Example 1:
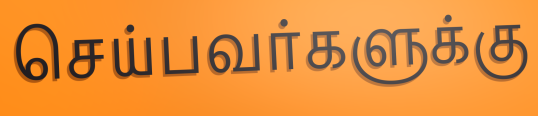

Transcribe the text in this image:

செய்பவர்களுக்கு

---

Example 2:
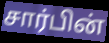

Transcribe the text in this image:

சார்பின்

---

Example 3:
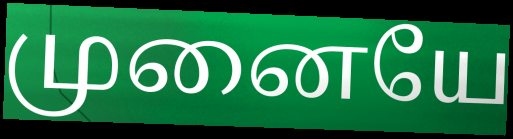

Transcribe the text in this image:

முனையே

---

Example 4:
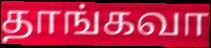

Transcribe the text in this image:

தாங்கவா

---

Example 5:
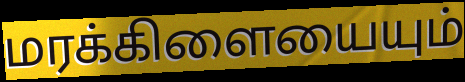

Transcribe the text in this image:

மரக்கிளையையும்